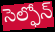
సెల్ఫోన్